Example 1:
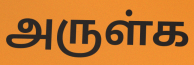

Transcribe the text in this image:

அருள்க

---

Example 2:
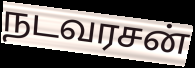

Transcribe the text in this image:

நடவரசன்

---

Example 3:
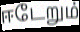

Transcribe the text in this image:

ஈடேறும்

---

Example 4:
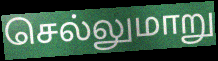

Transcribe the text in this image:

செல்லுமாறு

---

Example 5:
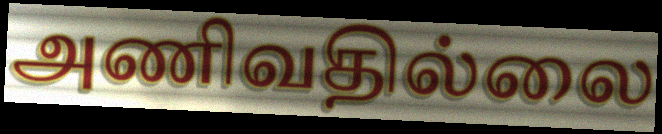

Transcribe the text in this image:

அணிவதில்லை